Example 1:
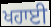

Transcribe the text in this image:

ਖਹਾਈ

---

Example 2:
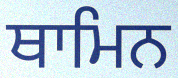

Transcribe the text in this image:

ਥਾਮਿਨ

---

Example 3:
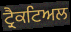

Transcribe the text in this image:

ਟ੍ਰੈਕਟਿਅਲ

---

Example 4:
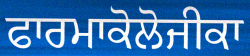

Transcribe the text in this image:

ਫਾਰਮਾਕੋਲੋਜੀਕਾ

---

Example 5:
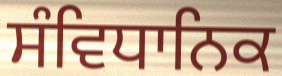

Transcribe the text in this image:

ਸੰਵਿਧਾਨਿਕ